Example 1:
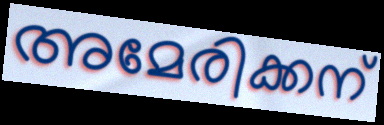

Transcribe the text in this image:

അമേരിക്കന്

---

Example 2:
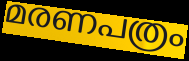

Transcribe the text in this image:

മരണപത്രം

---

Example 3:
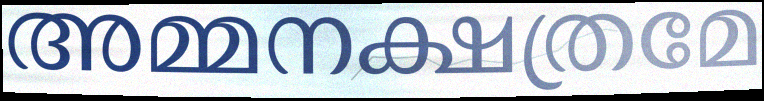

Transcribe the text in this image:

അമ്മനക്ഷത്രമേ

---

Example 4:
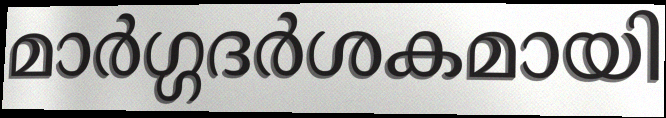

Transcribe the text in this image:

മാർഗ്ഗദർശകമായി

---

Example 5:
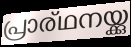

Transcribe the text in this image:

പ്രാര്ഥനയ്ക്കു